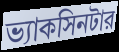
ভ্যাকসিনটার